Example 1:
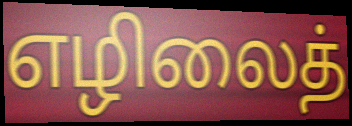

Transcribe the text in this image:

எழிலைத்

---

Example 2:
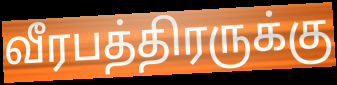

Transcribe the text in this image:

வீரபத்திரருக்கு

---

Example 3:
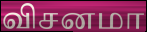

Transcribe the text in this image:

விசனமா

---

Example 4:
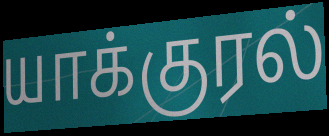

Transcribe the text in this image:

யாக்குரல்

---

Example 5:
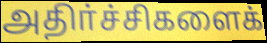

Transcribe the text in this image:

அதிர்ச்சிகளைக்